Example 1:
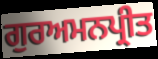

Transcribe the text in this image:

ਗੁਰਅਮਨਪ੍ਰੀਤ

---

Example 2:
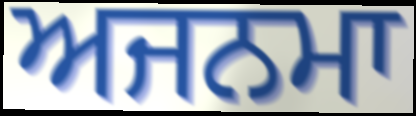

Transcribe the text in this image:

ਅਜਨਮਾ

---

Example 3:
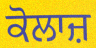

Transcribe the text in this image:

ਕੋਲਾਜ਼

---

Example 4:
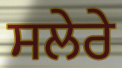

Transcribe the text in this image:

ਸਲੇਰੇ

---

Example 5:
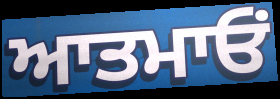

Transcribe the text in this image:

ਆਤਮਾਓਂ